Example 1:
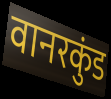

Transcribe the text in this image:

वानरकुंड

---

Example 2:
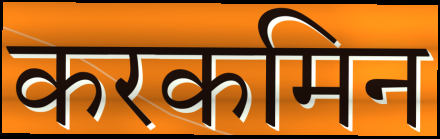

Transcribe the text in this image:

करकमिन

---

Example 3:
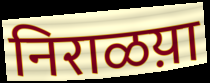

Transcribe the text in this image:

निराळय़ा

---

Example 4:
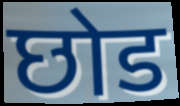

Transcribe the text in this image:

छोड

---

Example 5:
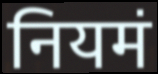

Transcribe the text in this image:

नियमं